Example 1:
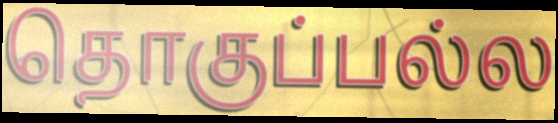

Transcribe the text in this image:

தொகுப்பல்ல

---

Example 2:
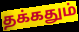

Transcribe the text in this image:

தக்கதும்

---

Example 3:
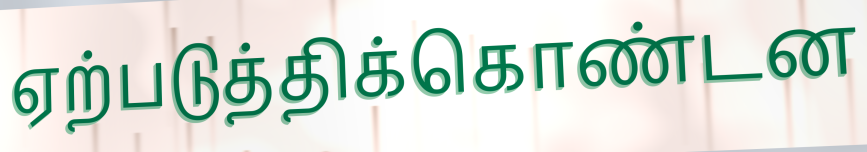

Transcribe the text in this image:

ஏற்படுத்திக்கொண்டன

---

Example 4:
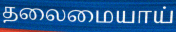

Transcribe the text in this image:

தலைமையாய்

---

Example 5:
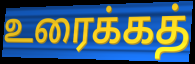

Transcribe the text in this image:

உரைக்கத்